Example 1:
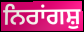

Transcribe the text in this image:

ਨਿਰਾਂਗਸ਼ੁ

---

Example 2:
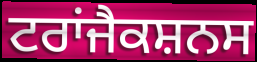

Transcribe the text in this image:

ਟਰਾਂਜੈਕਸ਼ਨਸ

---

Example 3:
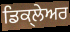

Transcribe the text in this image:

ਡਿਕ੍ਲੇਅਰ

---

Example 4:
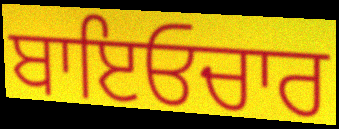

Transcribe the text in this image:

ਬਾਇਓਚਾਰ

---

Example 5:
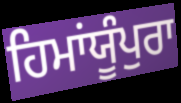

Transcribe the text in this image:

ਹਿਮਾਂਯੂੰਪੁਰਾ